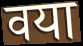
वया